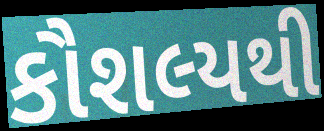
કૌશલ્યથી